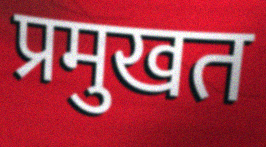
प्रमुखत